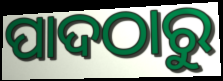
ପାଦଠାରୁ